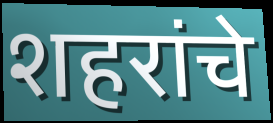
शहरांचे